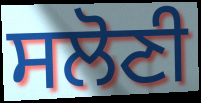
ਸਲੋਣੀ